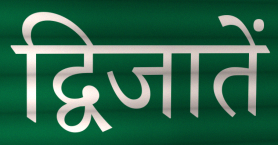
द्विजातें